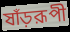
ষাঁড়রূপী